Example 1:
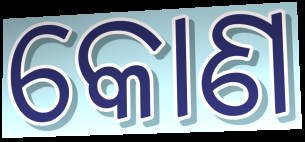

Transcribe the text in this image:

କୋଣ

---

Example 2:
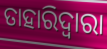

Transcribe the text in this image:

ତାହାରିଦ୍ଵାରା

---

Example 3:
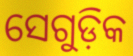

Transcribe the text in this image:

ସେଗୁଡ଼ିକ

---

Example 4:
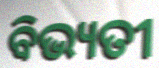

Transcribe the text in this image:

ବିଭ୍ୟତୀ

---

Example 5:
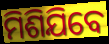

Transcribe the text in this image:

ମିଶିଯିବେ